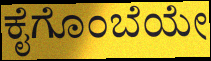
ಕೈಗೊಂಬೆಯೇ